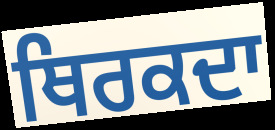
ਥਿਰਕਦਾ